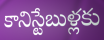
కానిస్టేబుళ్లకు